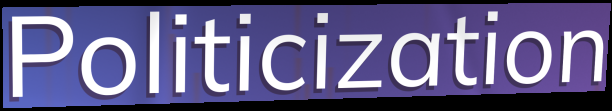
Politicization